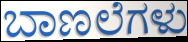
ಬಾಣಲೆಗಳು